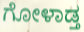
ಗೋಳಾಡ್ತ